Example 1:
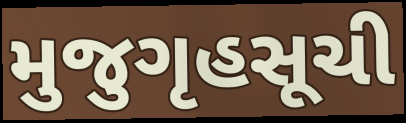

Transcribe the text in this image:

મુજુગૃહસૂચી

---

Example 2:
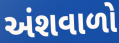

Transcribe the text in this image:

અંશવાળો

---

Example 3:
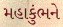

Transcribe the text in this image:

મહાકુંભને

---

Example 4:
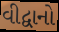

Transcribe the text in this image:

વીદ્વાનો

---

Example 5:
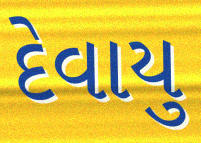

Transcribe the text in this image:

દેવાયુ